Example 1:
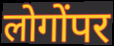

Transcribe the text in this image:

लोगोंपर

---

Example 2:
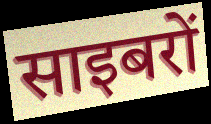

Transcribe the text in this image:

साइबरों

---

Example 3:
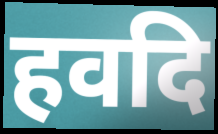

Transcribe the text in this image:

हवदि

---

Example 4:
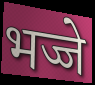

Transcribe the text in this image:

भज्जे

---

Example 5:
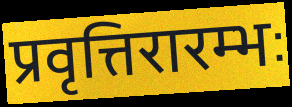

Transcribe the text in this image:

प्रवृत्तिरारम्भः